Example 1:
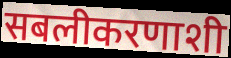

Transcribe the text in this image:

सबलीकरणाशी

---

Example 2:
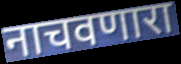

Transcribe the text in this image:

नाचवणारा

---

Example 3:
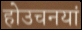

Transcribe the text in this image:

होउचनयां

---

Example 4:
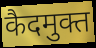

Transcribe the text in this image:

कैदमुक्त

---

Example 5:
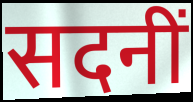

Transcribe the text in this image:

सदनीं